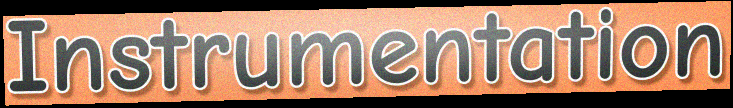
Instrumentation